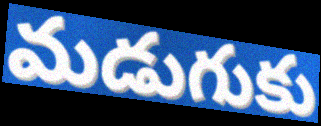
మడుగుకు